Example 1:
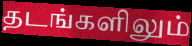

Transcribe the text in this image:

தடங்களிலும்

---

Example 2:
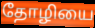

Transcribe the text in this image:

தோழியை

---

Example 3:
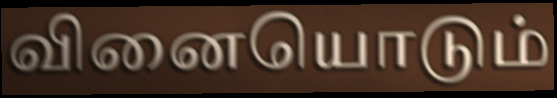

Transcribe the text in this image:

வினையொடும்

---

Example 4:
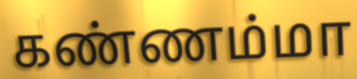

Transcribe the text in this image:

கண்ணம்மா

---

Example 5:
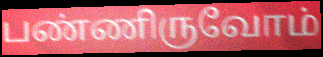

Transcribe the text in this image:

பண்ணிருவோம்